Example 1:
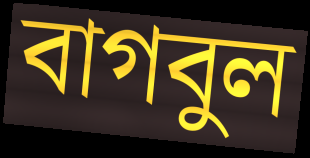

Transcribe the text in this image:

বাগবুল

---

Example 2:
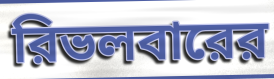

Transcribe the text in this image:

রিভলবারের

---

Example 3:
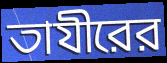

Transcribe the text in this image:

তাযীরের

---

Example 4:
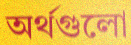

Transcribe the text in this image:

অর্থগুলো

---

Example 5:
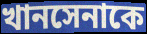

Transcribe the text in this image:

খানসেনাকে